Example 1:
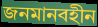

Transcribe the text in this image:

জনমানবহীন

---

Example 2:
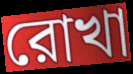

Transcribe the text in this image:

রোখা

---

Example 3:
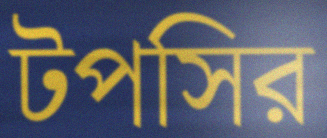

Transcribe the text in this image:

টপসির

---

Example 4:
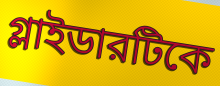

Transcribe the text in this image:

গ্লাইডারটিকে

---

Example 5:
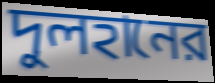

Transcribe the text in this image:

দুলহানের